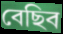
বেছিব